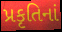
પ્રકૃતિનાં